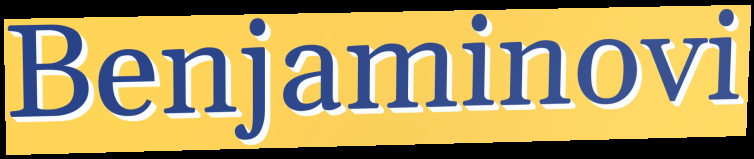
Benjaminovi